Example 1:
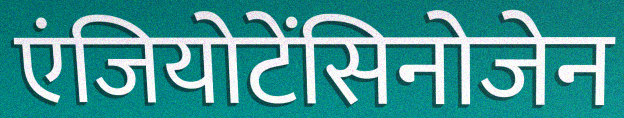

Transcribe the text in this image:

एंजियोटेंसिनोजेन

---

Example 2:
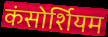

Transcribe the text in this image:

कंसोर्शियम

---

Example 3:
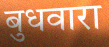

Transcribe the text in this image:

बुधवारा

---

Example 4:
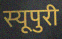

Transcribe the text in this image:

स्यूपुरी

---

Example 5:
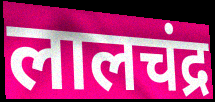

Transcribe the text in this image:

लालचंद्र